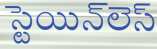
స్టెయిన్‌లెస్